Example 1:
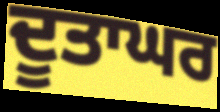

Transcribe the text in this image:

ਦੂਤਾਘਰ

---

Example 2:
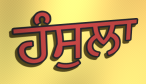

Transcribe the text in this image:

ਹੰਸੁਲਾ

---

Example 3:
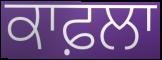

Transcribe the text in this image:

ਕਾਫ਼ਲਾ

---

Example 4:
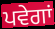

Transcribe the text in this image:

ਪਵੇਗਾਂ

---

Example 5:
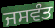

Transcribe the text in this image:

ਜਸਵੰਤ